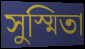
সুস্মিতা